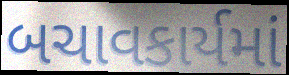
બચાવકાર્યમાં